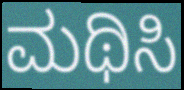
ಮಥಿಸಿ